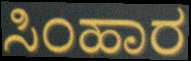
ಸಿಂಹಾರ